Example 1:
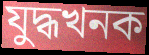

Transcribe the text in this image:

যুদ্ধখনক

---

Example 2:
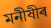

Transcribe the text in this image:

মনীষীৰ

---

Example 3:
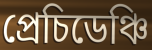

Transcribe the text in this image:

প্ৰেচিডেঞ্চি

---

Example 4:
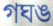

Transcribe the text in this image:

গঘঙ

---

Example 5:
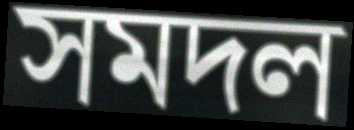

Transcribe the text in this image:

সমদল